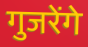
गुजरेंगे